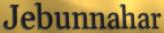
Jebunnahar